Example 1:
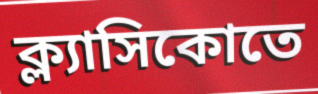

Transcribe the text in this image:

ক্ল্যাসিকোতে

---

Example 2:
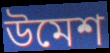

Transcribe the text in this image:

উমেশ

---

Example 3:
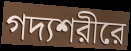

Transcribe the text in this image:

গদ্যশরীরে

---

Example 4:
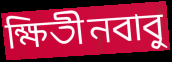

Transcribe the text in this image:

ক্ষিতীনবাবু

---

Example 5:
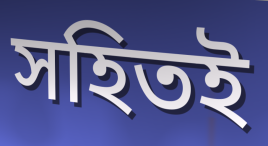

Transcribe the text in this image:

সহিতই